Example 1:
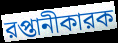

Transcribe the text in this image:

রপ্তানীকারক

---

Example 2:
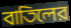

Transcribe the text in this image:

বাতিলের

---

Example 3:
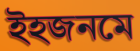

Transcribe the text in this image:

ইহজনমে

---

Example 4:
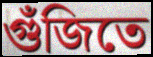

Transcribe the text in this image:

গুঁজিতে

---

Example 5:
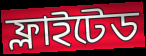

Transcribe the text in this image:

ফ্লাইটেড